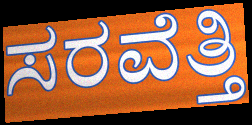
ಸರವೆತ್ತಿ